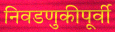
निवडणुकीपूर्वी